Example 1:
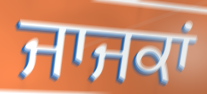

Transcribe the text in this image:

ਜਾਜਕਾਂ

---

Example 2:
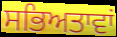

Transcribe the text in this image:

ਸਭਿਅਤਾਵਾਂ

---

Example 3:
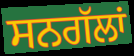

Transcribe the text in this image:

ਸਨਗੱਲਾਂ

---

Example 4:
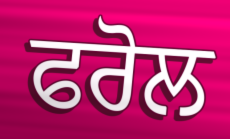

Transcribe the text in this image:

ਫਰੋਲ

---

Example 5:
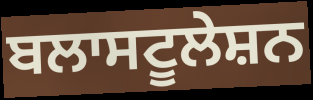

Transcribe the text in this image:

ਬਲਾਸਟੂਲੇਸ਼ਨ